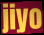
jiyo